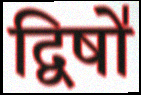
द्विषो॑